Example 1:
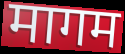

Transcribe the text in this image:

मागम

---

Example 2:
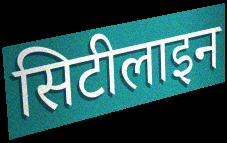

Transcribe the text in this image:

सिटीलाइन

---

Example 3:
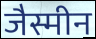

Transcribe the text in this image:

जैस्‍मीन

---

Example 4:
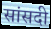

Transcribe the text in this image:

सांसदी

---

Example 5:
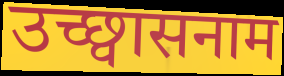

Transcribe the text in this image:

उच्छ्वासनाम